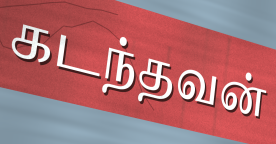
கடந்தவன்